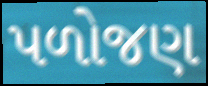
પળોજણ